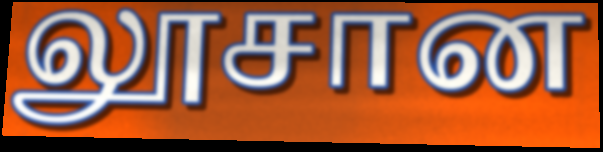
லூசான